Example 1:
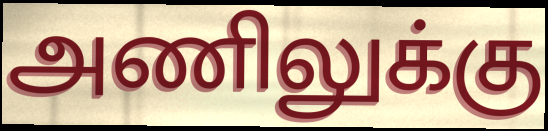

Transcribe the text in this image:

அணிலுக்கு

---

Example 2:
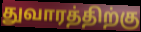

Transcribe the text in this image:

துவாரத்திற்கு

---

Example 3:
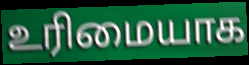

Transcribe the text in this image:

உரிமையாக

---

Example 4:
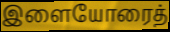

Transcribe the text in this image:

இளையோரைத்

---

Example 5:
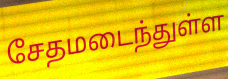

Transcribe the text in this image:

சேதமடைந்துள்ள